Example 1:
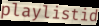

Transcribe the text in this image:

playlistid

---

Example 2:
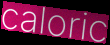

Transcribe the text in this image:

caloric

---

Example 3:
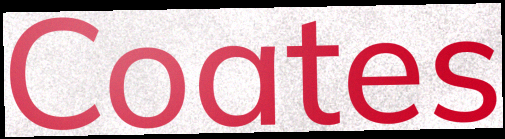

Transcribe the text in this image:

Coates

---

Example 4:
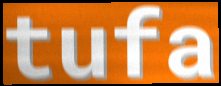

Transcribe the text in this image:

tufa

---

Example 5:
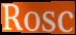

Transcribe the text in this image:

Rosc